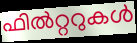
ഫിൽറ്ററുകൾ